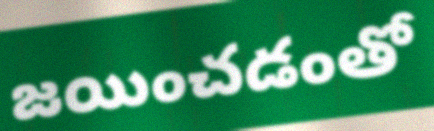
జయించడంతో